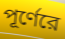
পূর্ণেরে